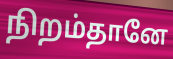
நிறம்தானே